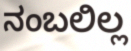
ನಂಬಲಿಲ್ಲ